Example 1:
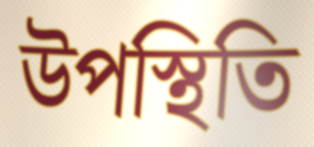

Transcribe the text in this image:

উপস্থিতি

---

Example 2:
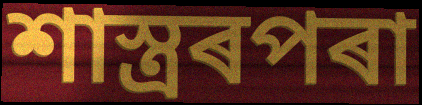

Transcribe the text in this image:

শাস্ত্ৰৰপৰা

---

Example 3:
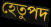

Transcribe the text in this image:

হেতুপদ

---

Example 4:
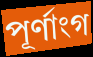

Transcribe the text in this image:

পূৰ্ণাংগ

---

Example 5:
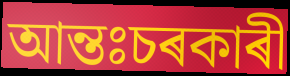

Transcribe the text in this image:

আন্তঃচৰকাৰী